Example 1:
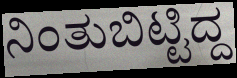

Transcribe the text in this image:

ನಿಂತುಬಿಟ್ಟಿದ್ದ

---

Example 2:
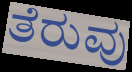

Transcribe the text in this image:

ತೆರುವು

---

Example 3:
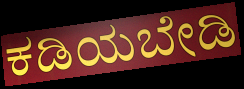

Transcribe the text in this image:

ಕಡಿಯಬೇಡಿ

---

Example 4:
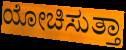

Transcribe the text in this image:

ಯೋಚಿಸುತ್ತಾ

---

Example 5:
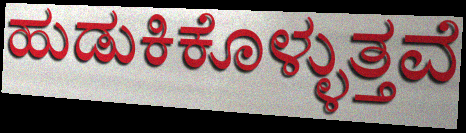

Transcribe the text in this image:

ಹುಡುಕಿಕೊಳ್ಳುತ್ತವೆ